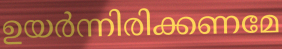
ഉയർന്നിരിക്കണമേ